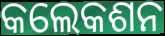
କଲେକଶନ